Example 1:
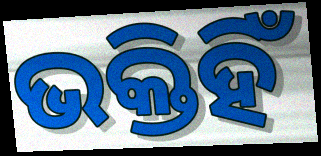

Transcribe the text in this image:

ଭକ୍ତିହିଁ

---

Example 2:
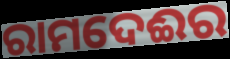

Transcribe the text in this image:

ରାମଦେଈର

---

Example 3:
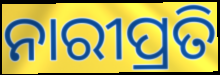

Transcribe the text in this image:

ନାରୀପ୍ରତି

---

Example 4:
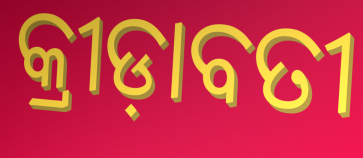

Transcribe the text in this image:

କ୍ରୀଡ଼ାବତୀ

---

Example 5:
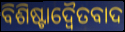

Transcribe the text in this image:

ବିଶିଷ୍ଟାଦ୍ୱୈତବାଦ